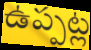
ఉప్పట్ల